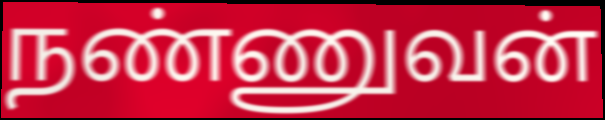
நண்ணுவன்